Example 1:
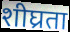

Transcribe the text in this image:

शीघ्रता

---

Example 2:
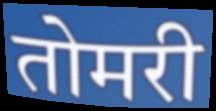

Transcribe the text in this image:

तोमरी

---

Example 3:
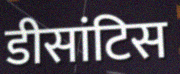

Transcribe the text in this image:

डीसांटिस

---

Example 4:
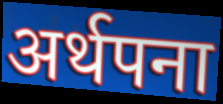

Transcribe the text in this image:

अर्थपना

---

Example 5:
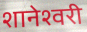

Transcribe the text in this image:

शानेश्वरी